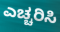
ಎಚ್ಚರಿಸಿ